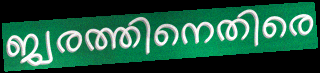
ജ്വരത്തിനെതിരെ